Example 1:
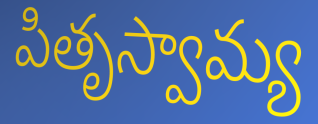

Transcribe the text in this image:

పితృస్వామ్య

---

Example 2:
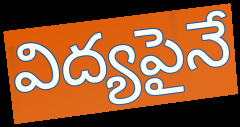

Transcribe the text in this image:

విద్యపైనే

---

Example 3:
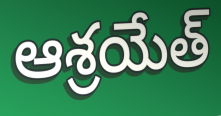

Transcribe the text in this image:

ఆశ్రయేత్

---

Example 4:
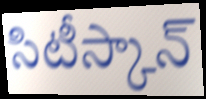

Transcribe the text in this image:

సిటీస్కాన్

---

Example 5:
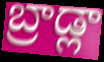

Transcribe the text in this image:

బ్రాడ్లా